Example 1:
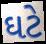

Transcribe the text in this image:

ઘટે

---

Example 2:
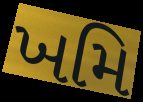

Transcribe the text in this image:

ખમિ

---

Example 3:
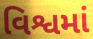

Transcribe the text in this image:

વિશ્વમાં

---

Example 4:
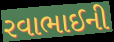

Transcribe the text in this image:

રવાભાઈની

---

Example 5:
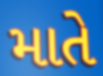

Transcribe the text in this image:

માતે